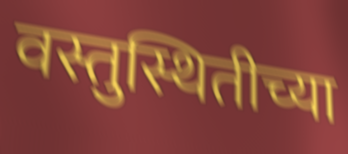
वस्तुस्थितीच्या